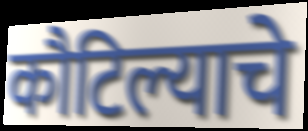
कौटिल्याचे